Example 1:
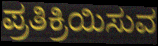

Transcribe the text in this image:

ಪ್ರತಿಕ್ರಿಯಿಸುವ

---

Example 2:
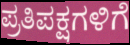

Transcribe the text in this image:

ಪ್ರತಿಪಕ್ಷಗಳಿಗೆ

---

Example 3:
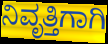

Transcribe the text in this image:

ನಿವೃತ್ತಿಗಾಗಿ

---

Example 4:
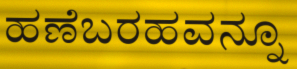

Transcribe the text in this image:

ಹಣೆಬರಹವನ್ನೂ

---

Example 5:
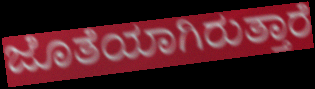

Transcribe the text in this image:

ಜೊತೆಯಾಗಿರುತ್ತಾರೆ